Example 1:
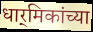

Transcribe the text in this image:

धार्मिकांच्या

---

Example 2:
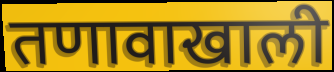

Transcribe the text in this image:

तणावाखाली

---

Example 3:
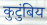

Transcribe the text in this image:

कुटुंबिय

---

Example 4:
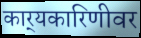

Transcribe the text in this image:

कार्यकारिणीवर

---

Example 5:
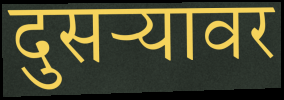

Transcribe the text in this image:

दुसऱ्यावर